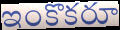
ఇంకొకరూ